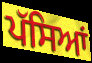
ਪੱਸਿਆਂ